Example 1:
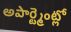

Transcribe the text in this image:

అపార్ట్మెంట్లో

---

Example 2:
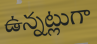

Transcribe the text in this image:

ఉన్నట్లుగా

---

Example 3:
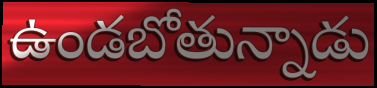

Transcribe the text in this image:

ఉండబోతున్నాడు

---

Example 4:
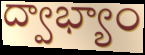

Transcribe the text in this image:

ద్వాభ్యాం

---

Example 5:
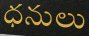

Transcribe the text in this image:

ధనులు